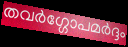
തവർഗ്ഗോപമർദ്ദം